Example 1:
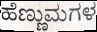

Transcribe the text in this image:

ಹೆಣ್ಣುಮಗಳ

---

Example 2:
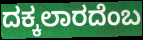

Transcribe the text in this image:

ದಕ್ಕಲಾರದೆಂಬ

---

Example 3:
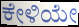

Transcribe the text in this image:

ಕೇಳಿಯೇ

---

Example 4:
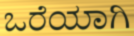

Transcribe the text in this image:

ಒರೆಯಾಗಿ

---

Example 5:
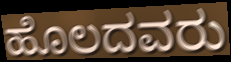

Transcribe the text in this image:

ಹೊಲದವರು